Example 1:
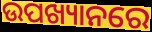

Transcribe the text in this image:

ଉପଖ୍ୟାନରେ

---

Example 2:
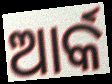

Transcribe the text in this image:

ଆର୍କ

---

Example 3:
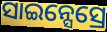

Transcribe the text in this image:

ସାଇନ୍ସେସ୍ରେ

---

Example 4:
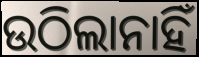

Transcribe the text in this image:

ଉଠିଲାନାହିଁ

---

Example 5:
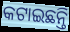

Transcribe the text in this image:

କଟାଇଛନ୍ତି